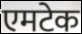
एमटेक